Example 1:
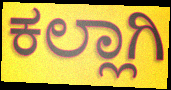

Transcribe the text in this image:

ಕಲ್ಲಾಗಿ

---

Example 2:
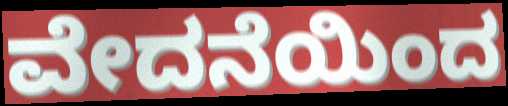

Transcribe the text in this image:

ವೇದನೆಯಿಂದ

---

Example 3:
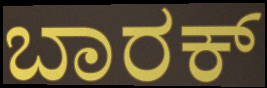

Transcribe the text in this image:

ಬಾರಕ್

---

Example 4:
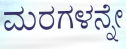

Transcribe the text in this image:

ಮರಗಳನ್ನೇ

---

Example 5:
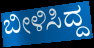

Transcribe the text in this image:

ಬೀಳಿಸಿದ್ದ